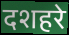
दशहरे